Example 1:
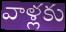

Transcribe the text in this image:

వాళ్లకు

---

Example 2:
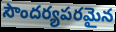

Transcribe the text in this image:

సౌందర్యపరమైన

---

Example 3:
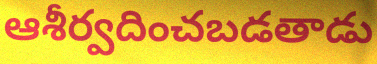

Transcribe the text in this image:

ఆశీర్వదించబడతాడు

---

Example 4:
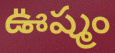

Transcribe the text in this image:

ఊష్మం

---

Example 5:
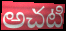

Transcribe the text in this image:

అచటి